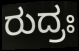
ರುದ್ರಃ